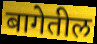
बागेतील